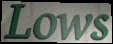
Lows